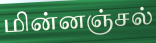
மின்னஞ்சல்